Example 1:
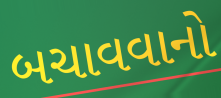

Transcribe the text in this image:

બચાવવાનો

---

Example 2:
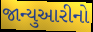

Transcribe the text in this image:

જાન્યુઆરીનો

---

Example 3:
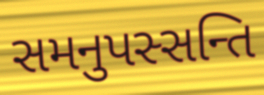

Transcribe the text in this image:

સમનુપસ્સન્તિ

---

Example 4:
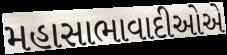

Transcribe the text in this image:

મહાસાભાવાદીઓએ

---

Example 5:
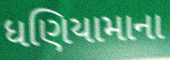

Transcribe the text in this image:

ધણિયામાના